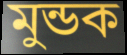
মুন্ডক